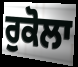
ਰੁਕੋਲਾ